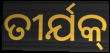
ତୀର୍ଯକ୍